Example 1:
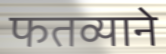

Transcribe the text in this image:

फतव्याने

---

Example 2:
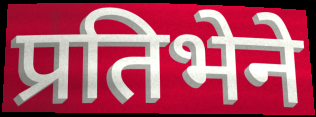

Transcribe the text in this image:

प्रतिभेने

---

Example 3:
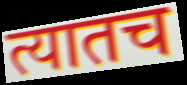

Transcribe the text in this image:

त्यातच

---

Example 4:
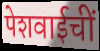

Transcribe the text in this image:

पेशवाईचीं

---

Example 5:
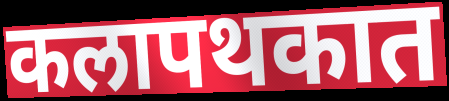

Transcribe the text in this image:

कलापथकात